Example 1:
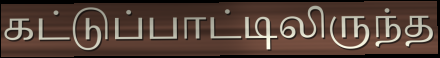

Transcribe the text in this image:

கட்டுப்பாட்டிலிருந்த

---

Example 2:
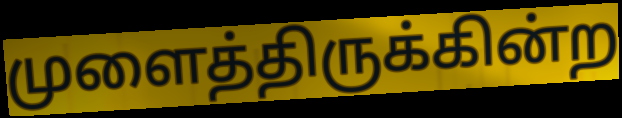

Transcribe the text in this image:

முளைத்திருக்கின்ற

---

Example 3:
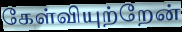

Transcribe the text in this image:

கேள்வியுற்றேன்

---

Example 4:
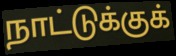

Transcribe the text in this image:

நாட்டுக்குக்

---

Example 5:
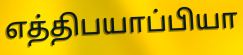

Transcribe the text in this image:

எத்திபயாப்பியா